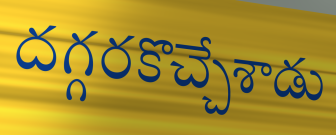
దగ్గరకొచ్చేశాడు